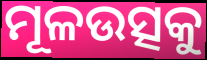
ମୂଳଉତ୍ସକୁ